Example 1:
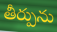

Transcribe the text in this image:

తీర్పును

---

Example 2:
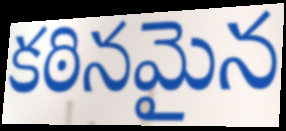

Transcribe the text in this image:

కఠినమైన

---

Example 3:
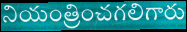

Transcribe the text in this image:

నియంత్రించగలిగారు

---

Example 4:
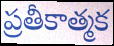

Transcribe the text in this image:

ప్రతీకాత్మక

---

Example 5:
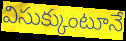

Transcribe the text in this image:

విసుక్కుంటూనే